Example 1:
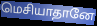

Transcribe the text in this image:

மெசியாதானே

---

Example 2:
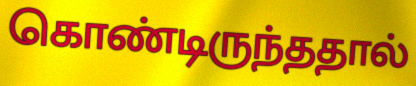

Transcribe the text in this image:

கொண்டிருந்ததால்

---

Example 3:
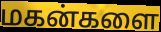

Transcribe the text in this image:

மகன்களை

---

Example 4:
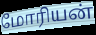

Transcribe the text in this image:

மோரியன்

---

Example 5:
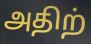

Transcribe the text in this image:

அதிற்